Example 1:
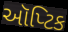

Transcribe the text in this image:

ઑપ્ટિક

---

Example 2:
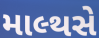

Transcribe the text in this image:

માલ્થસે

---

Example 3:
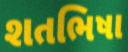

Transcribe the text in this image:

શતભિષા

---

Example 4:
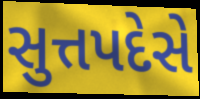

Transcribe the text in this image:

સુત્તપદેસે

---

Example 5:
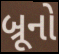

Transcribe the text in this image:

બ્રૂનો